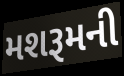
મશરૂમની